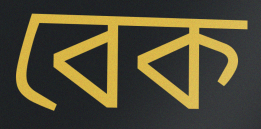
বেক